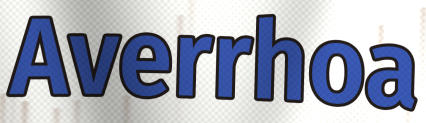
Averrhoa